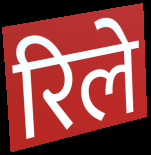
रिले